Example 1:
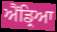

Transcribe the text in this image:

ਐਂਡ੍ਰਿਆ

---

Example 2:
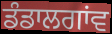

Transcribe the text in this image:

ਡੰਡਾਲਗਾਂਵ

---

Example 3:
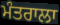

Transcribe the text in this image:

ਮੰਤਰਾਲਾ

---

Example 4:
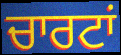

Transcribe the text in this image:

ਚਾਰਟਾਂ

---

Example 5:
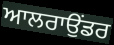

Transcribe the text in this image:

ਆਲਰਾਉਂਡਰ